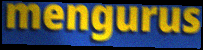
mengurus